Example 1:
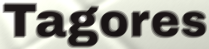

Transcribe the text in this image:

Tagores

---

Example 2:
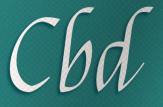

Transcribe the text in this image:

Cbd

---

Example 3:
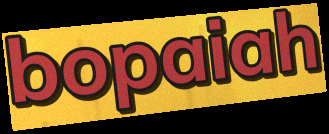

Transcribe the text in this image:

bopaiah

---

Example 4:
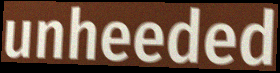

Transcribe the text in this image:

unheeded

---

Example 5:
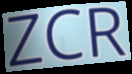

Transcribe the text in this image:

ZCR